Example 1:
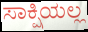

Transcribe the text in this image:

ಸಾಕ್ಷಿಯಲ್ಲ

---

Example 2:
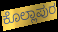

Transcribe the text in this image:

ಕೊಲ್ಲಾಪುರ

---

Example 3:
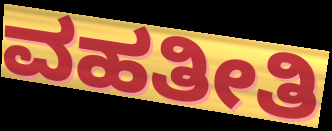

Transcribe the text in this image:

ವಹತೀತಿ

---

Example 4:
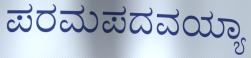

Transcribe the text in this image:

ಪರಮಪದವಯ್ಯಾ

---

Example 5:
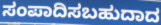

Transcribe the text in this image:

ಸಂಪಾದಿಸಬಹುದಾದ